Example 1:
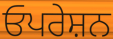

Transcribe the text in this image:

ਓਪਰੇਸ਼ਨ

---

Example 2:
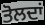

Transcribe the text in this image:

ਤੋਲਦਾਂ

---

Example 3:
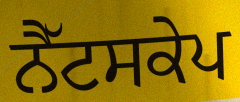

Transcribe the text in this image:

ਨੈੱਟਸਕੇਪ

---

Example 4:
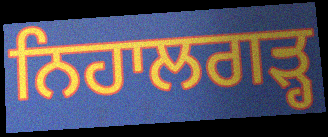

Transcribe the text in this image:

ਨਿਹਾਲਗੜ੍ਹ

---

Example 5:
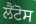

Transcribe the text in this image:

ਲੈਂਟੋਸ